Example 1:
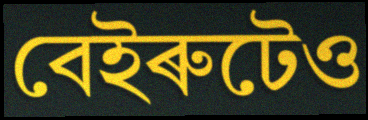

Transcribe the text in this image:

বেইৰুটেও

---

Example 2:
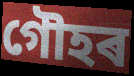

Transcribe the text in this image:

গৌহৰ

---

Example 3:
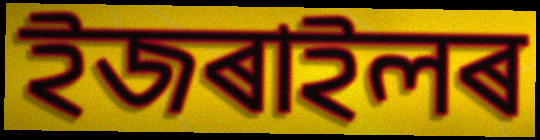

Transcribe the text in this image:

ইজৰাইলৰ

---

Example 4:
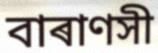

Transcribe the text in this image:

বাৰাণসী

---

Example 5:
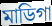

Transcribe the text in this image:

মাডিগা